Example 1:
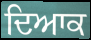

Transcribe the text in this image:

ਦਿਆਕ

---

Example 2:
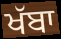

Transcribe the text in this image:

ਖੱਬਾ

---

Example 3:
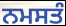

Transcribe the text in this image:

ਨਮਸਤੰ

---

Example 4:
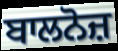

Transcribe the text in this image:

ਬਾਲਨੋਜ਼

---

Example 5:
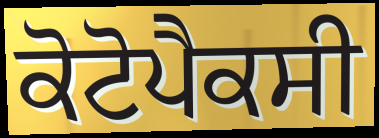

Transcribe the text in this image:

ਕੋਟੋਪੈਕਸੀ